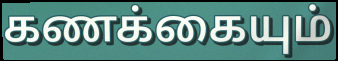
கணக்கையும்